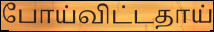
போய்விட்டதாய்